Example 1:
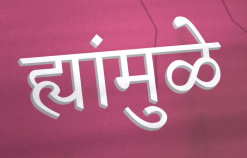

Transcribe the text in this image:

ह्यांमुळे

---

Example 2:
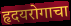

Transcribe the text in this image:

हृदयरोगाचा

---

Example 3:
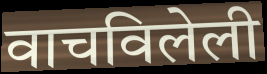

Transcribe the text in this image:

वाचविलेली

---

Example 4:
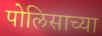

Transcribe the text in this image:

पोलिसाच्या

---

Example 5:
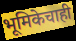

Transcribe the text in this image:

भूमिकेचाही